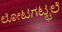
ಲೋಟಗಟ್ಟಲೆ